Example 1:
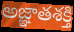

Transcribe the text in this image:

అజ్ఞాతశక్తి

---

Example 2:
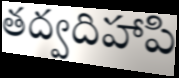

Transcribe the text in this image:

తద్వదిహాపి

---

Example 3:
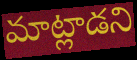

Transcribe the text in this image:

మాట్లాడని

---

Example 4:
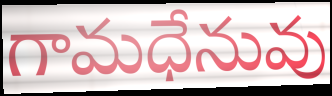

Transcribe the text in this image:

గామధేనువు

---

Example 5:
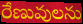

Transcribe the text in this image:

రేణువులను